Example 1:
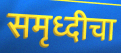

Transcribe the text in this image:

समृध्दीचा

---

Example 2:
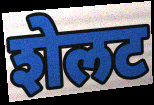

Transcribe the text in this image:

शेलट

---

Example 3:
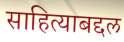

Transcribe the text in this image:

साहित्याबद्दल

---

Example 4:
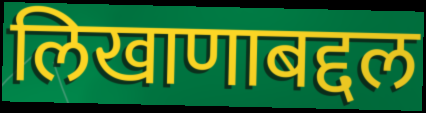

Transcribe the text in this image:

लिखाणाबद्दल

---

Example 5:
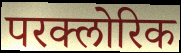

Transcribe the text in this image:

परक्लोरिक